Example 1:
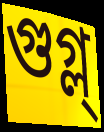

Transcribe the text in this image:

গুগ্ল্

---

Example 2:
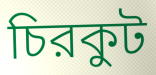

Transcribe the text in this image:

চিরকুট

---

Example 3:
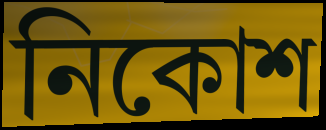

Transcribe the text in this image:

নিকোশ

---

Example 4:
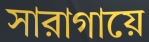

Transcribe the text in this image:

সারাগায়ে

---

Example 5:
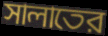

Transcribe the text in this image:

সালাতের